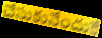
చేసుకునేందుకే